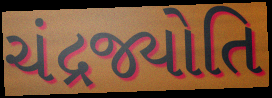
ચંદ્રજ્યોતિ